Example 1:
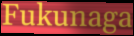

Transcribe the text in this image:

Fukunaga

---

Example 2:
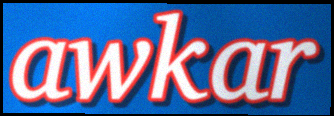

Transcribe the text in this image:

awkar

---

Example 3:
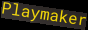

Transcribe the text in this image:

Playmaker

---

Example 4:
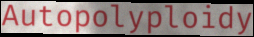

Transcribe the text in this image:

Autopolyploidy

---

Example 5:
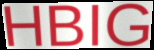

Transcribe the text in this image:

HBIG